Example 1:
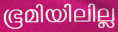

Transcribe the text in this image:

ഭൂമിയിലില്ല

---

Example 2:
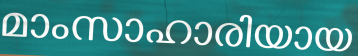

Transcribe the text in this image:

മാംസാഹാരിയായ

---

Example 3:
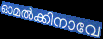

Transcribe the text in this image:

ഓമൽക്കിനാവേ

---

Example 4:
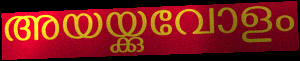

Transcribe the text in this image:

അയയ്ക്കുവോളം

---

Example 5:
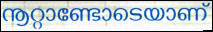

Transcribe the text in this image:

നൂറ്റാണ്ടോടെയാണ്